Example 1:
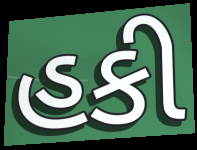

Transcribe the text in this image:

હકી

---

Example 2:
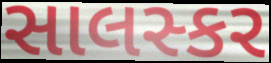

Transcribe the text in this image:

સાલસ્કર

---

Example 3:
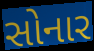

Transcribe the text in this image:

સોનાર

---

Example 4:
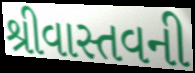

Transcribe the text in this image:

શ્રીવાસ્તવની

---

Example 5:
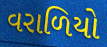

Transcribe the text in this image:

વરાળિયો